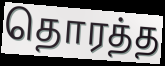
தொரத்த